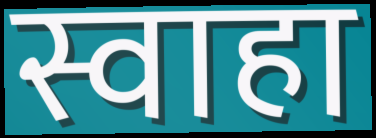
स्वाहा